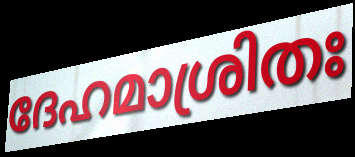
ദേഹമാശ്രിതഃ